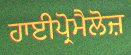
ਹਾਈਪ੍ਰੋਮੈਲੋਜ਼